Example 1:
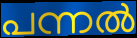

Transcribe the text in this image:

പന്നൽ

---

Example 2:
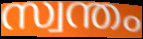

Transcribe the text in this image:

സ്വന്തം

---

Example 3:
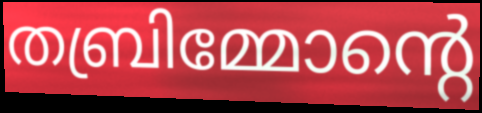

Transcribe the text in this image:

തബ്രിമ്മോന്റെ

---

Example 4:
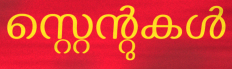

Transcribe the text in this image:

സ്റ്റെന്റുകൾ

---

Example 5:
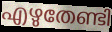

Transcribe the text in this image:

എഴുതേണ്ടി